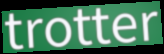
trotter